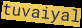
tuvaiyal